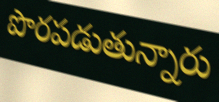
పొరపడుతున్నారు